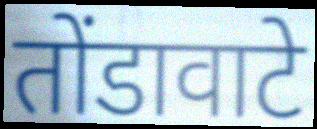
तोंडावाटे